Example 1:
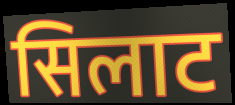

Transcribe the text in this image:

सिलाट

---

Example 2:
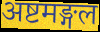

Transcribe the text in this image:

अष्टमङ्गल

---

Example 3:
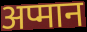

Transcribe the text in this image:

अप्मान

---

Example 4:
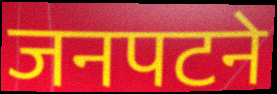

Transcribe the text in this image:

जनपटने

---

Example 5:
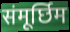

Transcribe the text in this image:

संमूर्छिम